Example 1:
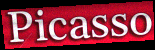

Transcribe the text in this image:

Picasso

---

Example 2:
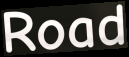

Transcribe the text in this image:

Road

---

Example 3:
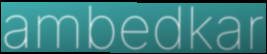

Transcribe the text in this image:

ambedkar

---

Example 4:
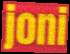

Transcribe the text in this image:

joni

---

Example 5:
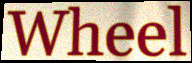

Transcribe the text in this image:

Wheel